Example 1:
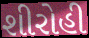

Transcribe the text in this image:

શીરોહી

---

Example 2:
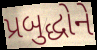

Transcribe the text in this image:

પ્રબુદ્ધોને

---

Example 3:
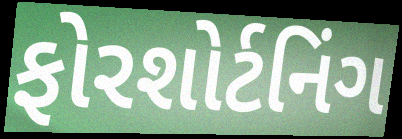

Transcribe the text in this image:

ફોરશોર્ટનિંગ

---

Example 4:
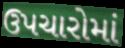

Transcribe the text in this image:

ઉપચારોમાં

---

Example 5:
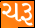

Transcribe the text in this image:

ચરૂ